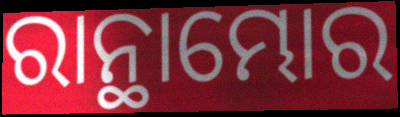
ରାନ୍ଥାମ୍ଭୋର